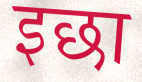
इछा